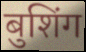
बुशिंग